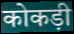
कोकड़ी